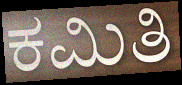
ಕಮಿತಿ